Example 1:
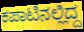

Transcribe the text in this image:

ಕಪಾಟಿನಲ್ಲಿದ್ದ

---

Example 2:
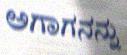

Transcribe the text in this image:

ಅಗಾಗನನ್ನು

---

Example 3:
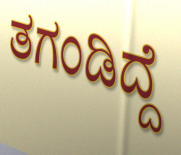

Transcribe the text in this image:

ತಗಂಡಿದ್ದೆ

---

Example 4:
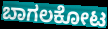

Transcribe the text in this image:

ಬಾಗಲಕೋಟ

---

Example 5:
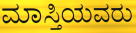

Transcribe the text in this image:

ಮಾಸ್ತಿಯವರು